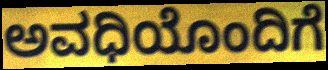
ಅವಧಿಯೊಂದಿಗೆ